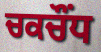
ਚਕਚੌਂਧ